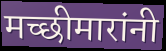
मच्छीमारांनी